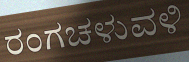
ರಂಗಚಳುವಳಿ